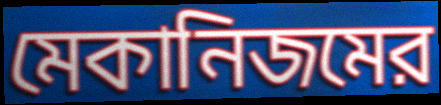
মেকানিজমের